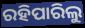
ରହିପାରିଲୁ